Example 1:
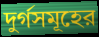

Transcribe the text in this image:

দুর্গসমূহের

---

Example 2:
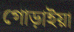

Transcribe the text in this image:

গোড়াইয়া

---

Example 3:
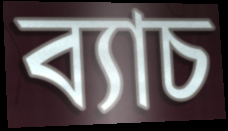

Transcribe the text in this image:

ব্যাচ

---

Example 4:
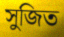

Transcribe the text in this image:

সুজিত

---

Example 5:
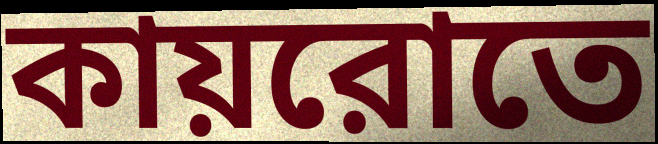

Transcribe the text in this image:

কায়রোতে